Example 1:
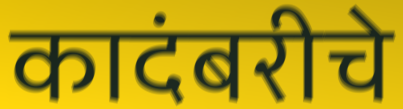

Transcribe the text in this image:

कादंबरीचे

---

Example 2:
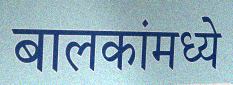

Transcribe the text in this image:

बालकांमध्ये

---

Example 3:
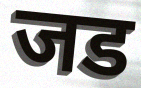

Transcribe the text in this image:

जड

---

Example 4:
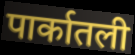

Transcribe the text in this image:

पार्कातली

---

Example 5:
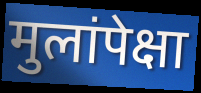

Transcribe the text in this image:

मुलांपेक्षा